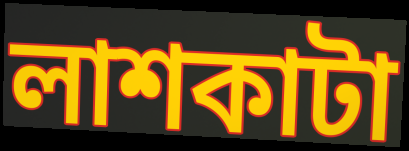
লাশকাটা